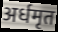
अर्धमृत